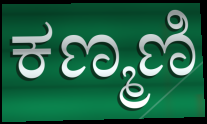
ಕಣ್ಮಣಿ